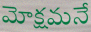
మోక్షమనే